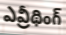
ఎవ్రీథింగ్